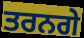
ਤਰਨਗੇ